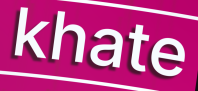
khate